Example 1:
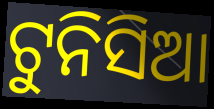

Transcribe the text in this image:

ଟୁନିସିଆ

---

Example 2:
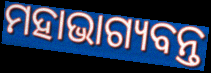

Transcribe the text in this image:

ମହାଭାଗ୍ୟବନ୍ତ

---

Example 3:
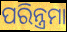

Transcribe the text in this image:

ପରିନ୍ତ୍ରମା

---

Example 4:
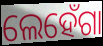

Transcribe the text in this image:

ଲେହେଁଗା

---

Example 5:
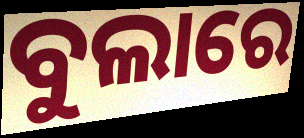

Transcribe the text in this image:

ବୁଲାରେ